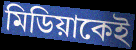
মিডিয়াকেই